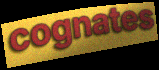
cognates